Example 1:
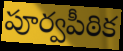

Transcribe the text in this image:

పూర్వపీఠిక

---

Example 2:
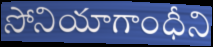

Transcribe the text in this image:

సోనియాగాంధీని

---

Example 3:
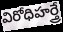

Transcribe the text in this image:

విరోధిహర్త్రే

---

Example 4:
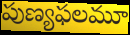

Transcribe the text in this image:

పుణ్యఫలమూ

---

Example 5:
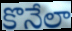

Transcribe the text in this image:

కొనేలా